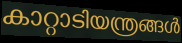
കാറ്റാടിയന്ത്രങ്ങൾ